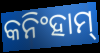
କନିଂହାମ୍